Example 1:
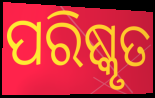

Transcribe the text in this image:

ପରିଷ୍କୃତ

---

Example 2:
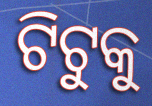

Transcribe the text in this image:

ଟିଟୁକୁ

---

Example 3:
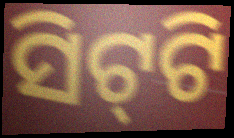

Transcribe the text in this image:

ସିଟ୍‌ଟି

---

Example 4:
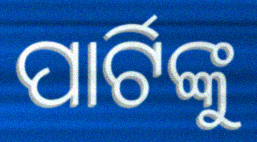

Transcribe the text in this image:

ପାର୍ଟିଙ୍କୁ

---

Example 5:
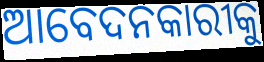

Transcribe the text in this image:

ଆବେଦନକାରୀକୁ